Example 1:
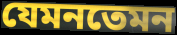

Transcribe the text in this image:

যেমনতেমন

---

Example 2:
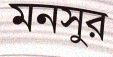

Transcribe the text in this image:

মনসুর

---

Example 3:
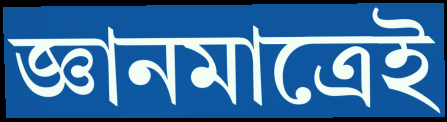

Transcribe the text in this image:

জ্ঞানমাত্রেই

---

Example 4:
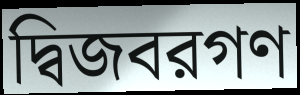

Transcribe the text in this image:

দ্বিজবরগণ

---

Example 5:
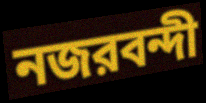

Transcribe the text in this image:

নজরবন্দী